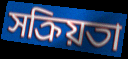
সক্ৰিয়তা